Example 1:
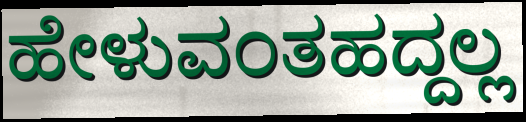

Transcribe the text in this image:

ಹೇಳುವಂತಹದ್ದಲ್ಲ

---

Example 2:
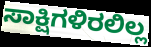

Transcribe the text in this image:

ಸಾಕ್ಷಿಗಳಿರಲಿಲ್ಲ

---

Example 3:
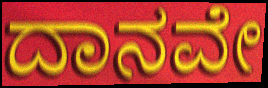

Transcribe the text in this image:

ದಾನವೇ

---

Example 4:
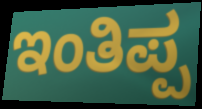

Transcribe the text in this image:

ಇಂತಿಪ್ಪ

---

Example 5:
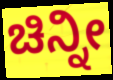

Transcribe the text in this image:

ಚಿನ್ನೀ